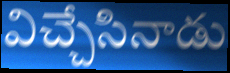
విచ్చేసినాడు